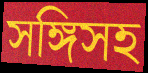
সঙ্গিসহ